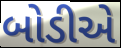
બોડીએ